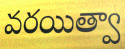
వరయిత్వా